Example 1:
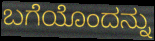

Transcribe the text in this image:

ಬಗೆಯೊಂದನ್ನು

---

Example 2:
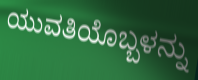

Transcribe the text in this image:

ಯುವತಿಯೊಬ್ಬಳನ್ನು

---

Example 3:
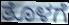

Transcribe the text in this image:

ತೊಳಗೆ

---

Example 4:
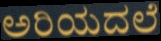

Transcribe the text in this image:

ಅರಿಯದಲೆ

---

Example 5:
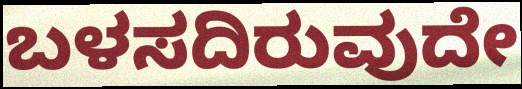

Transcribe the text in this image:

ಬಳಸದಿರುವುದೇ